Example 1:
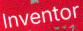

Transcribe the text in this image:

Inventor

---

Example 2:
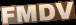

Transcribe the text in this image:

FMDV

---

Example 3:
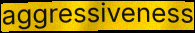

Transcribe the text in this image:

aggressiveness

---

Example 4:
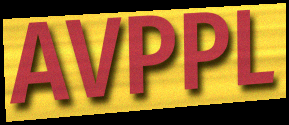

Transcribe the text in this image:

AVPPL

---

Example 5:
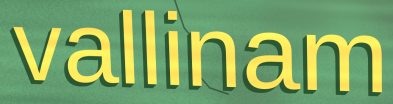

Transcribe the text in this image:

vallinam